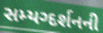
સમ્યગ્દર્શનની